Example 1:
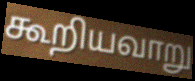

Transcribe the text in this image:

கூறியவாறு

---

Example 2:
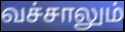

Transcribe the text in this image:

வச்சாலும்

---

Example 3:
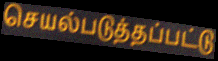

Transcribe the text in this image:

செயல்படுத்தப்பட்டு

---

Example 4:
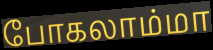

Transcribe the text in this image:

போகலாம்மா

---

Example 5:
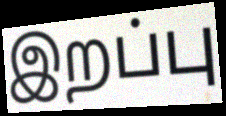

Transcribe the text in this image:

இறப்பு